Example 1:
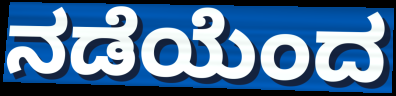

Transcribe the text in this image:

ನಡೆಯೆಂದ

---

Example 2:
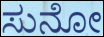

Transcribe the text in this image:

ಸುನೋ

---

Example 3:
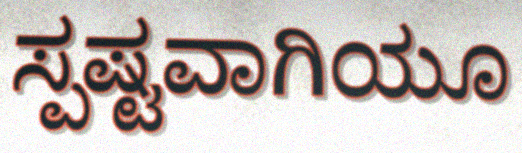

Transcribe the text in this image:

ಸ್ಪಷ್ಟವಾಗಿಯೂ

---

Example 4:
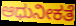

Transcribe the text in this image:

ಆಧುನೀಕತೆ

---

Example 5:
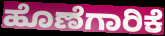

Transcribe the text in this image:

ಹೊಣೆಗಾರಿಕೆ